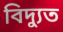
বিদ্যুত